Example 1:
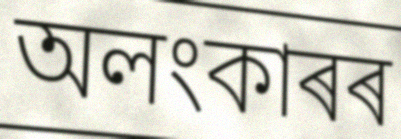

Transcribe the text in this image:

অলংকাৰৰ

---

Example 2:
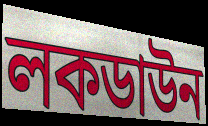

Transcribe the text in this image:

লকডাউন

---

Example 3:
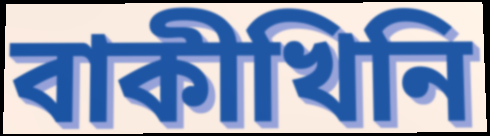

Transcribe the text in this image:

বাকীখিনি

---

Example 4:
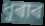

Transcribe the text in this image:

ধুৰাৰ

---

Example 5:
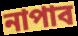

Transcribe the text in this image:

নাপাব